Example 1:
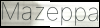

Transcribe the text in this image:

Mazeppa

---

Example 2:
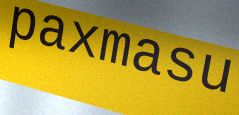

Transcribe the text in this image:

paxmasu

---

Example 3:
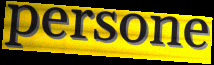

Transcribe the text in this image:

persone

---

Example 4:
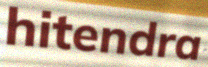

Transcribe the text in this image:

hitendra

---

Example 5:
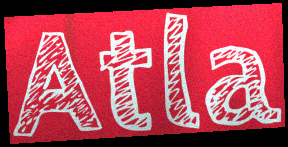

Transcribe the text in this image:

Atla